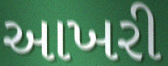
આખરી